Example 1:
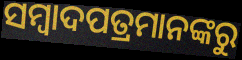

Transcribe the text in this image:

ସମ୍ୱାଦପତ୍ରମାନଙ୍କରୁ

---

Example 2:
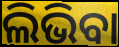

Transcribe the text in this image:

ଲିଭିବା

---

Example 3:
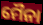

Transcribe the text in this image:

ମୈନା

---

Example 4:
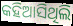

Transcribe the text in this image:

କହିଆସିଥିଲି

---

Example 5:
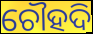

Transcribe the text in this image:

ଚୌହଦି